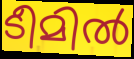
ടീമിൽ